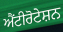
ਐਂਟੀਰੋਟੇਸ਼ਨ